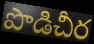
పొడిచీర